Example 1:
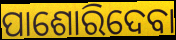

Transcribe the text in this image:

ପାଶୋରିଦେବା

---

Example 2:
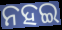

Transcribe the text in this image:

ନହଇ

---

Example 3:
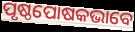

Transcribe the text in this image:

ପୃଷ୍ଠପୋଷକଭାବେ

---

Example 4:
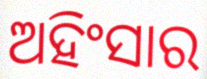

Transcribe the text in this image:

ଅହିଂସାର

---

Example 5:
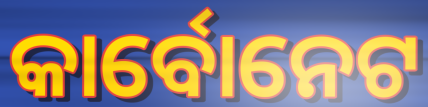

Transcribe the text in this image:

କାର୍ବୋନେଟ